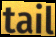
tail